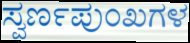
ಸ್ವರ್ಣಪುಂಖಗಳ